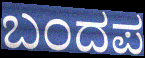
ಬಂದಪ